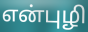
என்புழி